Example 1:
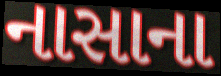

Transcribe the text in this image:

નાસાના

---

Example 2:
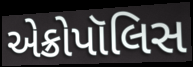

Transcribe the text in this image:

એક્રોપૉલિસ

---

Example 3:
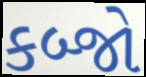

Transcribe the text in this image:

કબ્જો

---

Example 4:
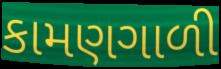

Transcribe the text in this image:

કામણગાળી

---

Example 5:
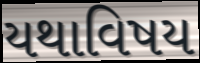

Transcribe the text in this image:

યથાવિષય